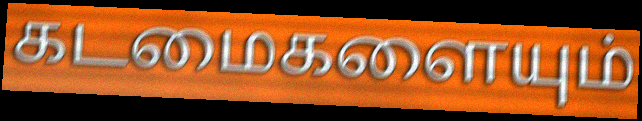
கடமைகளையும்